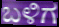
ಬಳಿಗ